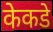
केकडे